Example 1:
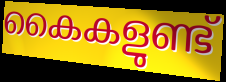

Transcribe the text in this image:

കൈകളുണ്ട്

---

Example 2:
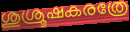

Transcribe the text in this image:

ശുശ്രൂഷകരത്രേ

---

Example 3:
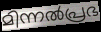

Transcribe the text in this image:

മിന്നൽപ്രഭ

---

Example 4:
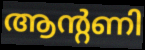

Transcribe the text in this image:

ആന്റണി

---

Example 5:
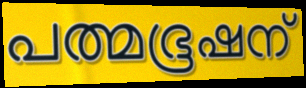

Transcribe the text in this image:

പത്മഭൂഷന്